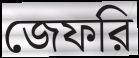
জেফরি